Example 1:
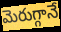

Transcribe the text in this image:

మెరుగ్గానే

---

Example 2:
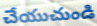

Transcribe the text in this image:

చేయుచుండి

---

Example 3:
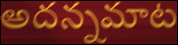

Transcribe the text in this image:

అదన్నమాట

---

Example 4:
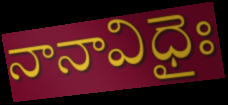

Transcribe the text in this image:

నానావిధైః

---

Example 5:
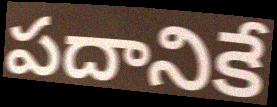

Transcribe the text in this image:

పదానికే